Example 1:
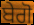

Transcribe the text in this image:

ਬੇਗੋ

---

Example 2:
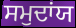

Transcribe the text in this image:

ਸਮੁਦਾਂਯ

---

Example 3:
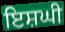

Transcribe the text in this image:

ਇਸ਼ਘੀ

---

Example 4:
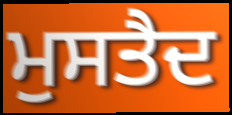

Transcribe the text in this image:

ਮੁਸਤੈਦ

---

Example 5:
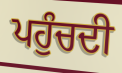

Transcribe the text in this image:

ਪਹੁੰਚਦੀ